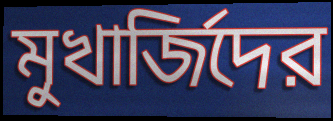
মুখার্জিদের